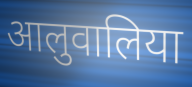
आलुवालिया